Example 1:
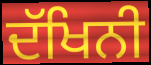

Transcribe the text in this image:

ਦੱਖਿਨੀ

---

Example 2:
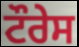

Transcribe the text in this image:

ਟੌਰੇਸ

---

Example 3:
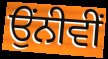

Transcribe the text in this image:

ਉੰਨੀਵੀਂ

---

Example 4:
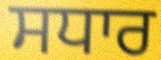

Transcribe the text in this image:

ਸਧਾਰ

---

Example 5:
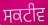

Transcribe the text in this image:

ਸਕਟੀਵ